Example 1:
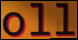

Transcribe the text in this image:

oll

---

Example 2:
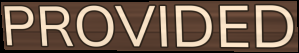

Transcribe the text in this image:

PROVIDED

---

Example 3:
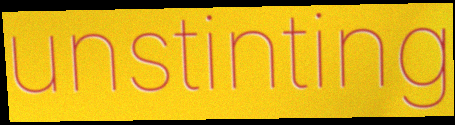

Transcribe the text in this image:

unstinting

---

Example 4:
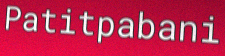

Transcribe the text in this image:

Patitpabani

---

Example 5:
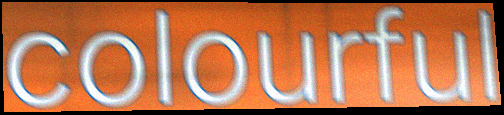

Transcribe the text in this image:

colourful